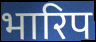
भारिप